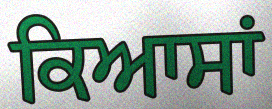
ਕਿਆਸਾਂ